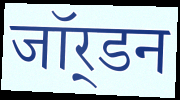
जॉर्डन